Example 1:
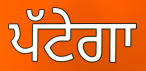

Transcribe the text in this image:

ਪੱਟੇਗਾ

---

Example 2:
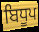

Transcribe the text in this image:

ਬਿਧੂਪ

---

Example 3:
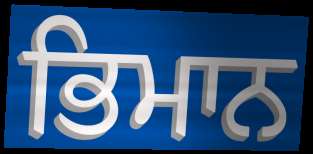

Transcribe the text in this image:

ਭਿਮਾਨ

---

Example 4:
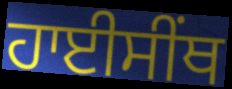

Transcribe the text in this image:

ਹਾਈਸੀੰਥ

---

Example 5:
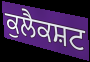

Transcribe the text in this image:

ਕੁਲੈਕਸ਼ਟ